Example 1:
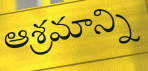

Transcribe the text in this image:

ఆశ్రమాన్ని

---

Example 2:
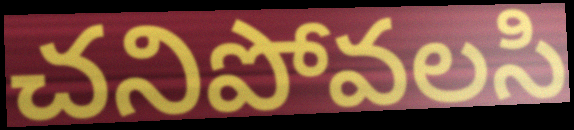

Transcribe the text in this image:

చనిపోవలసి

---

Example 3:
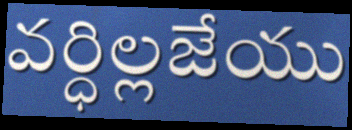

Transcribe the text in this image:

వర్ధిల్లజేయు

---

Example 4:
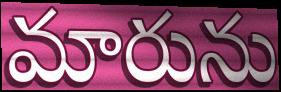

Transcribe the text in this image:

మారును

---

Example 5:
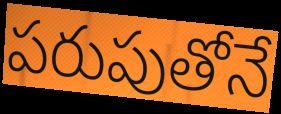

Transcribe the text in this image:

పరుపుతోనే